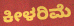
ಕೀಳರಿಮೆ